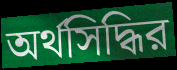
অর্থসিদ্ধির